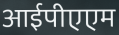
आईपीएएम